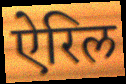
ऐरिल